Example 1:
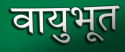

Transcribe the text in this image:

वायुभूत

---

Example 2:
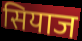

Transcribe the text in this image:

सियाज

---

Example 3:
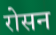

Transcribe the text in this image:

रोसन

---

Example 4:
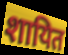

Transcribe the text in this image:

शायित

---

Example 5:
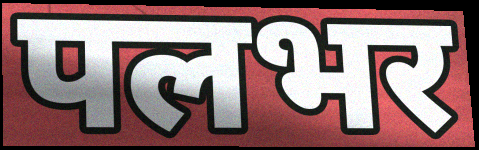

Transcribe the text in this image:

पलभर